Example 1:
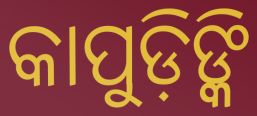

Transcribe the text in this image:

କାପୁଡ଼ିଙ୍କି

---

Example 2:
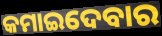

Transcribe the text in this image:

କମାଇଦେବାର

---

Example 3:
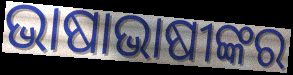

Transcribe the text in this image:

ଭାଷାଭାଷୀଙ୍କର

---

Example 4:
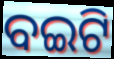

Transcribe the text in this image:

ବଇଟି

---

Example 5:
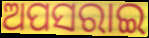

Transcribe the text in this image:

ଅପସରାଇ